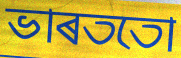
ভাৰততো